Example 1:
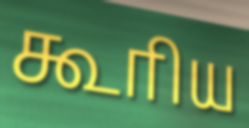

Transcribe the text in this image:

கூரிய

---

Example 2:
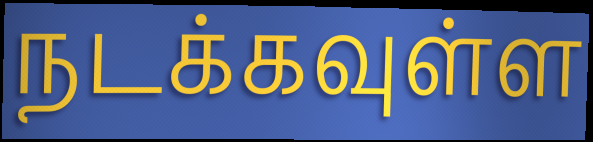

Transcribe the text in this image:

நடக்கவுள்ள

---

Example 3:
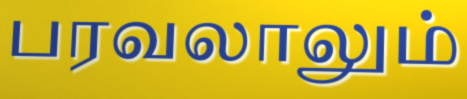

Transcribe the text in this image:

பரவலாலும்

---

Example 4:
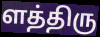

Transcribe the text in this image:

ளத்திரு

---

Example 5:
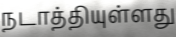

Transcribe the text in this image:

நடாத்தியுள்ளது